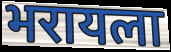
भरायला